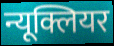
न्यूक्लियर